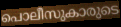
പൊലീസുകാരുടെ